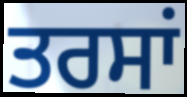
ਤਰਸਾਂ